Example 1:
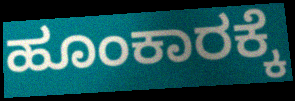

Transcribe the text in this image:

ಹೂಂಕಾರಕ್ಕೆ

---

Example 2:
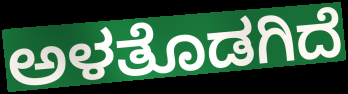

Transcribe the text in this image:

ಅಳತೊಡಗಿದೆ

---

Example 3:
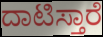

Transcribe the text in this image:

ದಾಟಿಸ್ತಾರೆ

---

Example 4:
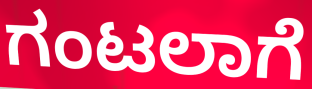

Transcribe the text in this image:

ಗಂಟಲಾಗೆ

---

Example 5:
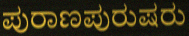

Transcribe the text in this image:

ಪುರಾಣಪುರುಷರು